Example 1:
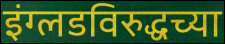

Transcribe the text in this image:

इंग्लडविरुद्धच्या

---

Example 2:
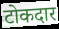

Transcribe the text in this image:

टोकदार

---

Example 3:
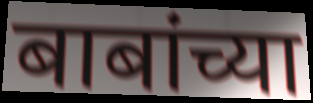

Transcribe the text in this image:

बाबांच्या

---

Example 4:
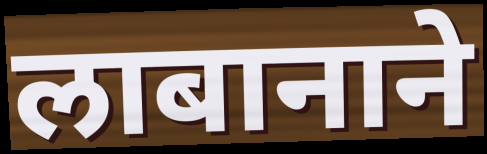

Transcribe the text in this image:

लाबानाने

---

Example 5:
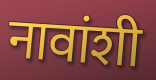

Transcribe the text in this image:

नावांशी